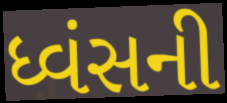
ધ્વંસની